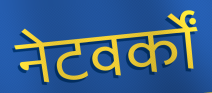
नेटवर्कों